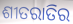
ଶୀତରାତିର